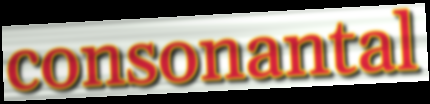
consonantal